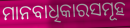
ମାନବାଧିକାରସମୂହ